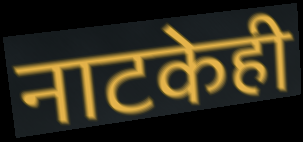
नाटकेही